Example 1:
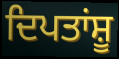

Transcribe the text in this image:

ਦਿਪਤਾਂਸ਼ੂ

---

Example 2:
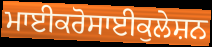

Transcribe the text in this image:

ਮਾਈਕਰੋਸਾਈਕੁਲੇਸ਼ਨ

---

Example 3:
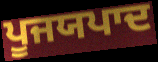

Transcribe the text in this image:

ਪੂਜਯਪਾਦ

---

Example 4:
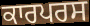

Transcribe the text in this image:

ਕਾਰਪਰਸ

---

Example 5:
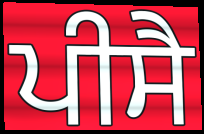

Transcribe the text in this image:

ਪੀਸੈ